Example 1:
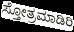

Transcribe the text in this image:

ಸ್ತೋತ್ರಮಾಡಿರಿ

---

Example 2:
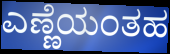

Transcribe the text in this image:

ಎಣ್ಣೆಯಂತಹ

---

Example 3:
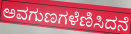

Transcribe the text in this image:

ಅವಗುಣಗಳೆಣಿಸಿದನೆ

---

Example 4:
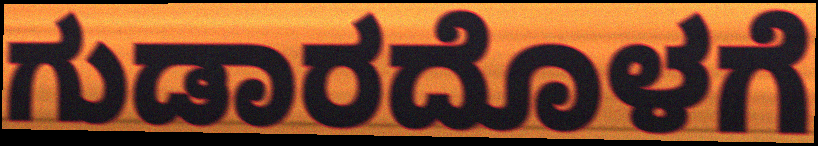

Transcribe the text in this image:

ಗುಡಾರದೊಳಗೆ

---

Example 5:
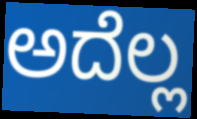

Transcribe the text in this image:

ಅದೆಲ್ಲ